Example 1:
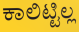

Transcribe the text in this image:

ಕಾಲಿಟ್ಟಿಲ್ಲ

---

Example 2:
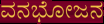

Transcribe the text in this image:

ವನಭೋಜನ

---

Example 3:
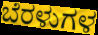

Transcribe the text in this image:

ಬೆರಳುಗಳ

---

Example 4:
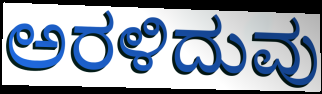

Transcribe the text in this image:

ಅರಳಿದುವು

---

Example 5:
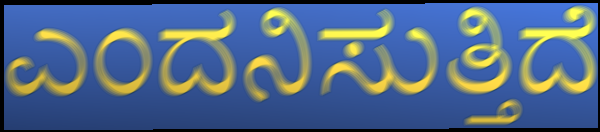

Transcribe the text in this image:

ಎಂದನಿಸುತ್ತಿದೆ